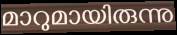
മാറുമായിരുന്നു